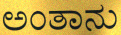
ಅಂತಾನು